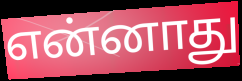
என்னாது